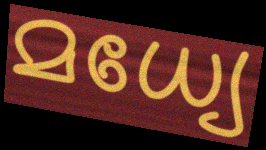
മധ്യേ